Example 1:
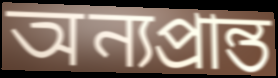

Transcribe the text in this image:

অন্যপ্রান্ত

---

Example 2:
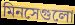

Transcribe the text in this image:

মিনসেগুলো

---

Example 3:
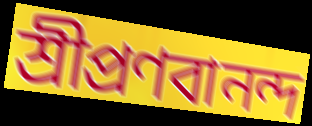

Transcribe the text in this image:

শ্রীপ্রণবানন্দ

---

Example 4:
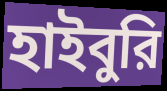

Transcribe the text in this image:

হাইবুরি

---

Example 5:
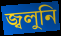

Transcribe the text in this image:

জ্বলুনি